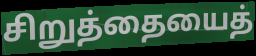
சிறுத்தையைத்